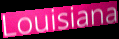
Louisiana